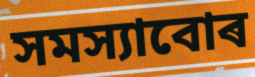
সমস্যাবোৰ